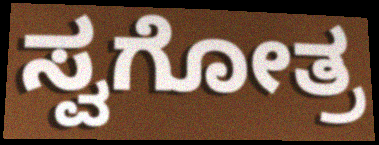
ಸ್ವಗೋತ್ರ